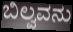
ಬಿಲ್ವವನು